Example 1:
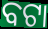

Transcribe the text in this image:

ବଟା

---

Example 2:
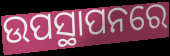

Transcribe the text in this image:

ଉପସ୍ଥାପନରେ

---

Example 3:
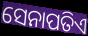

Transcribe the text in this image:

ସେନାପତିଏ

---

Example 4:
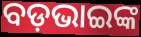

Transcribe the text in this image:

ବଡ଼ଭାଇଙ୍କ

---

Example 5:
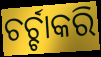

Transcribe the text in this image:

ଚର୍ଚ୍ଚାକରି